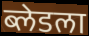
ब्लेडला